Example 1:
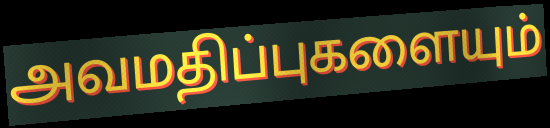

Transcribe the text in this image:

அவமதிப்புகளையும்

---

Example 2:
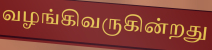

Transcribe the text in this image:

வழங்கிவருகின்றது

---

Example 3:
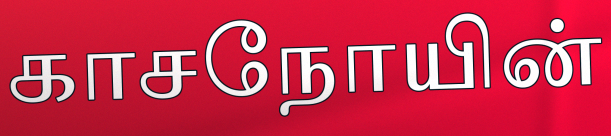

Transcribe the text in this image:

காசநோயின்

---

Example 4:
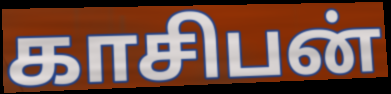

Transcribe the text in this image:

காசிபன்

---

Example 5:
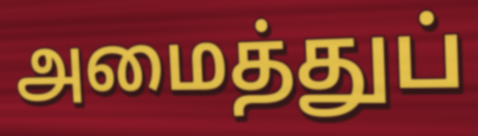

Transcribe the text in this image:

அமைத்துப்